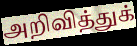
அறிவித்துக்